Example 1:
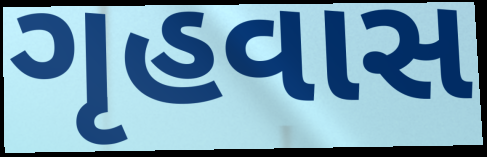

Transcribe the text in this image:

ગૃહવાસ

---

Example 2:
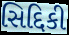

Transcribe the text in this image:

સિદ્દિકી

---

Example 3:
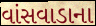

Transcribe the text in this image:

વાંસવાડાના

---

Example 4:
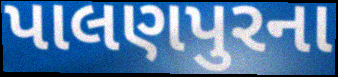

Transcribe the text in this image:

પાલણપુરના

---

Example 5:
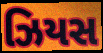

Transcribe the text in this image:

ઝિયસ